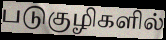
படுகுழிகளில்